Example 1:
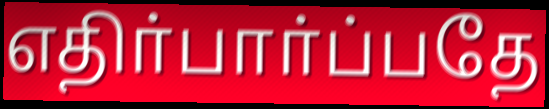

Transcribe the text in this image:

எதிர்பார்ப்பதே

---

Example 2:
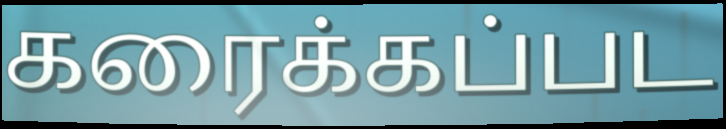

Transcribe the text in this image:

கரைக்கப்பட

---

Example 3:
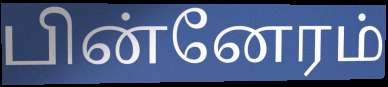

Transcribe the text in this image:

பின்னேரம்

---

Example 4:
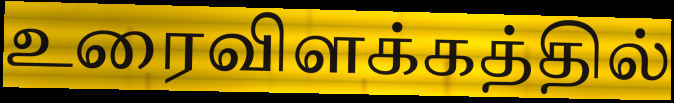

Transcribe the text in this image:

உரைவிளக்கத்தில்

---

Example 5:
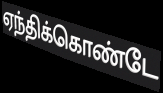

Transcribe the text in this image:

ஏந்திக்கொண்டே